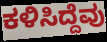
ಕಳಿಸಿದ್ದೆವು